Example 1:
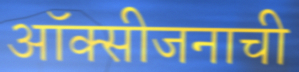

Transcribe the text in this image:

ऑक्सीजनाची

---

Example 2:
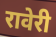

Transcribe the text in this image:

रावेरी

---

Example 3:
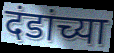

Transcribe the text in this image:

दंडांच्या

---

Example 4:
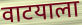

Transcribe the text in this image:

वाटयाला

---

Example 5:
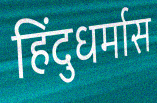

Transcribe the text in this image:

हिंदुधर्मास